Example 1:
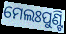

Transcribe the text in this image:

ମେଲଃପୁଣ୍ଟି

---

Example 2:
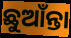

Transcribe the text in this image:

ଛୁଆଁନ୍ତା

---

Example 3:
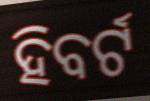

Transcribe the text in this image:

ହିବର୍ଟ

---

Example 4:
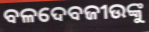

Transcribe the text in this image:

ବଳଦେବଜୀଉଙ୍କୁ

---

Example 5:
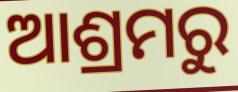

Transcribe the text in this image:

ଆଶ୍ରମରୁ